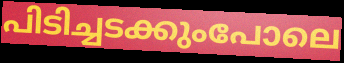
പിടിച്ചടക്കുംപോലെ